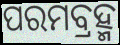
ପରମବ୍ରହ୍ମ